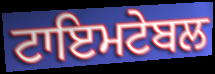
ਟਾਇਮਟੇਬਲ